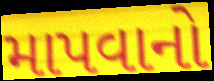
માપવાનો